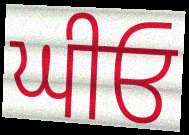
ਘੀਓ